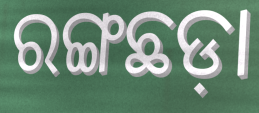
ରଙ୍ଗଛଡ଼ା